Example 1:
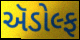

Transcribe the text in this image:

ઍડોલ્ફ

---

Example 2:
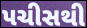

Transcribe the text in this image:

પચીસથી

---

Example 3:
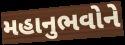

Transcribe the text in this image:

મહાનુભવોને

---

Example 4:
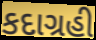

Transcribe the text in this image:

કદાગ્રહી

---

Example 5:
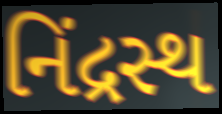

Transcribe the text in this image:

નિંદ્રસ્થ